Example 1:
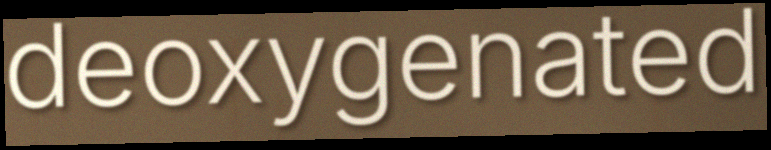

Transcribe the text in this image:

deoxygenated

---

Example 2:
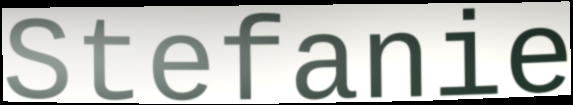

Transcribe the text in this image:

Stefanie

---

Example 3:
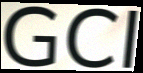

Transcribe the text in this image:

GCI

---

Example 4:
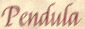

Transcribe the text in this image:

Pendula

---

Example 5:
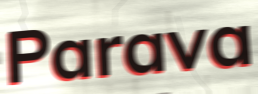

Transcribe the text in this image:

Parava